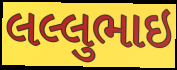
લલ્લુભાઇ